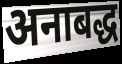
अनाबद्ध